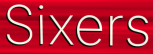
Sixers